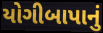
યોગીબાપાનું